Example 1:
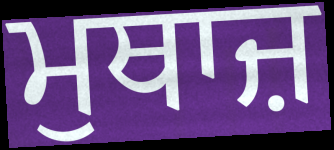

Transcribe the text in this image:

ਮੁਥਾਜ਼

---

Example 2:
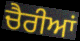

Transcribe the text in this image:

ਚੈਰੀਆਂ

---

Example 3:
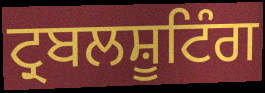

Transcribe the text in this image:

ਟ੍ਰਬਲਸ਼ੂਟਿੰਗ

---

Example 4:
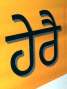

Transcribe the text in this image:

ਹੇਰੈ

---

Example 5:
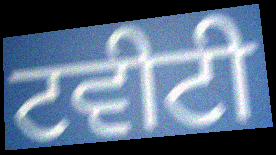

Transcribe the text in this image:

ਟਵੀਟੀ